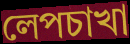
লেপচাখা